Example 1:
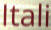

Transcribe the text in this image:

Itali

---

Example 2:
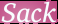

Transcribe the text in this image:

Sack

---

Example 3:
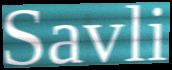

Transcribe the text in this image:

Savli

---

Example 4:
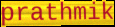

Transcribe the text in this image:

prathmik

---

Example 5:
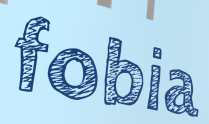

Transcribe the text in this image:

fobia